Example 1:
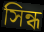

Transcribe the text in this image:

সিন্ধ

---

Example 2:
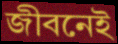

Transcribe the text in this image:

জীবনেই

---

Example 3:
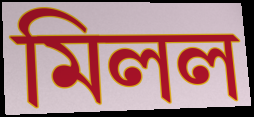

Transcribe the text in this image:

মিলল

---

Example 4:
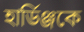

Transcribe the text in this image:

হার্ডিঞ্জকে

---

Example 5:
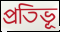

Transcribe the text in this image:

প্রতিভূ